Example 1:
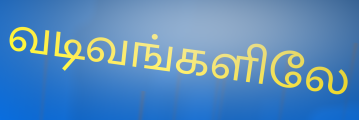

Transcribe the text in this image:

வடிவங்களிலே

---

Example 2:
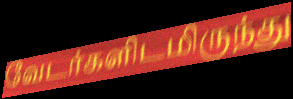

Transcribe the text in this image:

வேடர்களிடமிருந்து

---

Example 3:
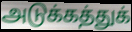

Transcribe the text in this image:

அடுக்கத்துக்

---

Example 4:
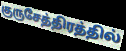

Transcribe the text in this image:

குருசேத்திரத்தில்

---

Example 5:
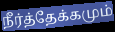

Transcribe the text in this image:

நீர்த்தேக்கமும்